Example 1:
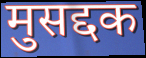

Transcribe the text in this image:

मुसद्दक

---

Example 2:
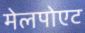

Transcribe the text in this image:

मेलपोएट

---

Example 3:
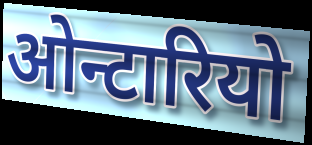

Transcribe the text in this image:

ओन्टारियो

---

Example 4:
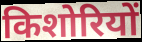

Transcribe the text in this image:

किशोरियों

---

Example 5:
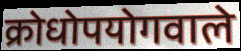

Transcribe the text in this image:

क्रोधोपयोगवाले